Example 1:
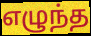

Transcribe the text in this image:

எழுந்த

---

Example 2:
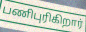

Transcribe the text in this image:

பணிபுரிகிறார்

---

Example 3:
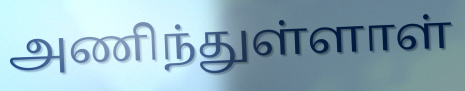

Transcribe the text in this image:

அணிந்துள்ளாள்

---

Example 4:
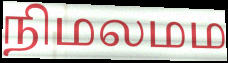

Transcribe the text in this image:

நிமலமம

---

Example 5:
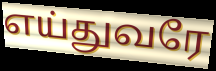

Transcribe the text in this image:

எய்துவரே